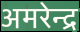
अमरेन्द्र